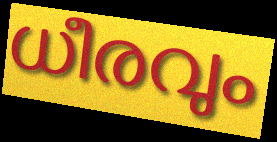
ധീരവും